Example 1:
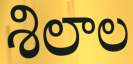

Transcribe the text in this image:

శిలాల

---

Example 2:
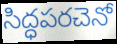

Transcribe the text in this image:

సిద్ధపరచెనో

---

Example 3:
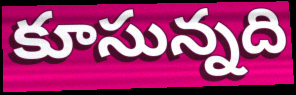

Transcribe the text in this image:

కూసున్నది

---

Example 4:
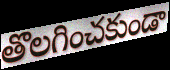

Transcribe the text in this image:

తొలగించకుండా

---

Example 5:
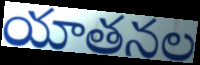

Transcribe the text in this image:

యాతనల